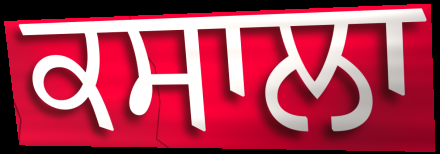
ਕਸਾਲਾ